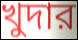
খুদার